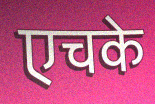
एचके